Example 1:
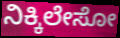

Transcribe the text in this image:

ನಿಕ್ಕಿಲೇಸೋ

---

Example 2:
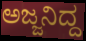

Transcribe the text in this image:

ಅಜ್ಜನಿದ್ದ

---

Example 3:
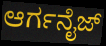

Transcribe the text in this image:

ಆರ್ಗನೈಜ್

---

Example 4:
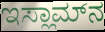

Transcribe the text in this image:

ಇಸ್ಲಾಮ್‌ನ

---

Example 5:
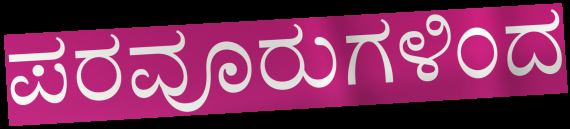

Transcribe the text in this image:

ಪರವೂರುಗಳಿಂದ